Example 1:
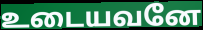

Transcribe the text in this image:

உடையவனே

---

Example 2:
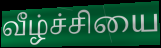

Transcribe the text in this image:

வீழ்ச்சியை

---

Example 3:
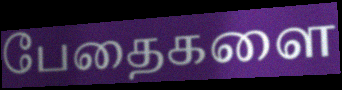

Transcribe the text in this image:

பேதைகளை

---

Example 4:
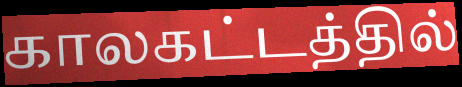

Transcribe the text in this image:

காலகட்டத்தில்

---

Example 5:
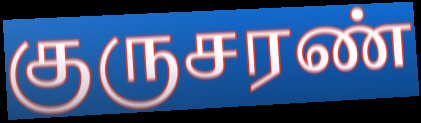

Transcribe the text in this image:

குருசரண்